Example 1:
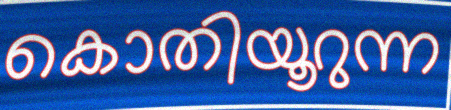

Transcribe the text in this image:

കൊതിയൂറുന്ന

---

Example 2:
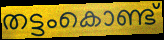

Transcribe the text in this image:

തട്ടംകൊണ്ട്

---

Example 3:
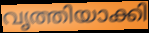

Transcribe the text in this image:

വൃത്തിയാക്കി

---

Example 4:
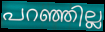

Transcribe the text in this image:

പറഞ്ഞില്ല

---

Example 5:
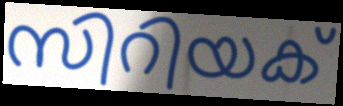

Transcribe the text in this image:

സിറിയക്